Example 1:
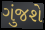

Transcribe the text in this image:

ગુંજશે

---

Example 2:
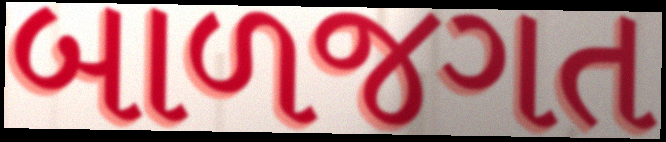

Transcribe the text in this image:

બાળજગત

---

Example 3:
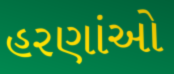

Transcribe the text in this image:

હરણાંઓ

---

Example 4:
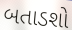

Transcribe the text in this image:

બતાડશો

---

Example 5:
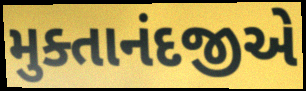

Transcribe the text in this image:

મુક્તાનંદજીએ